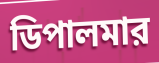
ডিপালমার